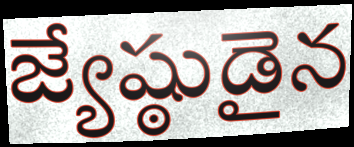
జ్యేష్ఠుడైన